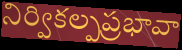
నిర్వికల్పప్రభావా